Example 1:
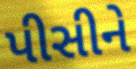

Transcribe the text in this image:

પીસીને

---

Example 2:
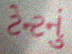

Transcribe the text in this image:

ટેન્ટનું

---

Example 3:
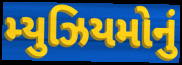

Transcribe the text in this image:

મ્યુઝિયમોનું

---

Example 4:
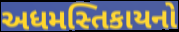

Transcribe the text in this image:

અધમસ્તિકાયનો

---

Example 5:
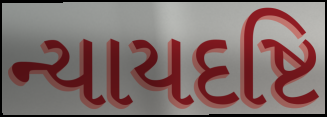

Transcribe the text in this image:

ન્યાયદષ્ટિ